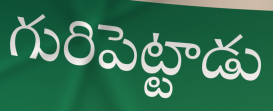
గురిపెట్టాడు